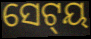
ସେଟ୍‌ୟ